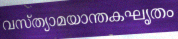
വസ്ത്യാമയാന്തകഘൃതം